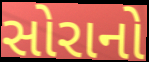
સોરાનો